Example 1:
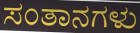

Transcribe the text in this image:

ಸಂತಾನಗಳು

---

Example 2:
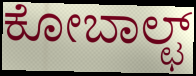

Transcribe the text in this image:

ಕೋಬಾಲ್ಟ್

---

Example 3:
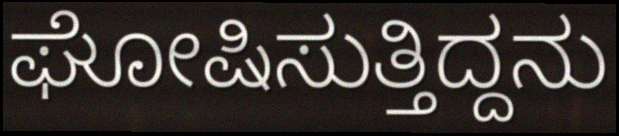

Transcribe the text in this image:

ಘೋಷಿಸುತ್ತಿದ್ದನು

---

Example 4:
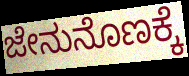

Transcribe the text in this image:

ಜೇನುನೊಣಕ್ಕೆ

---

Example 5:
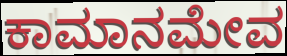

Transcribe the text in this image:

ಕಾಮಾನಮೇವ